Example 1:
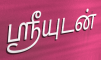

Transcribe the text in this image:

ஸ்ரீயுடன்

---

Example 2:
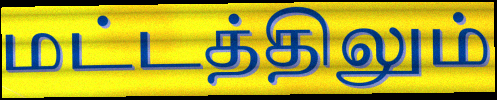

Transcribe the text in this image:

மட்டத்திலும்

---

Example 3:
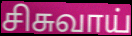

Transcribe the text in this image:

சிசுவாய்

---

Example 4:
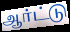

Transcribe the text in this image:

ஆர்ட்டு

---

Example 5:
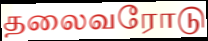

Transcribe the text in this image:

தலைவரோடு